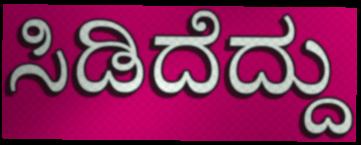
ಸಿಡಿದೆದ್ದು